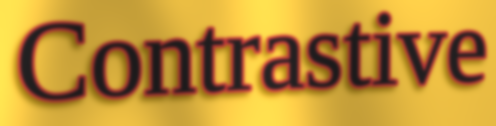
Contrastive